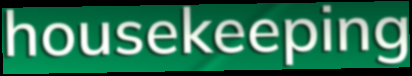
housekeeping